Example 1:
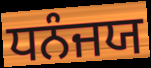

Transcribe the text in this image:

ਧਨੰਜਯ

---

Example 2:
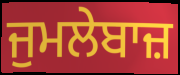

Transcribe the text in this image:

ਜੁਮਲੇਬਾਜ਼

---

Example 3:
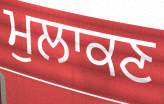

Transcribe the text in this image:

ਮੁਲਾਕਣ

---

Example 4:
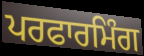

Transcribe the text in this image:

ਪਰਫਾਰਮਿੰਗ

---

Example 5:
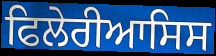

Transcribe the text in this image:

ਫਿਲੇਰੀਆਸਿਸ